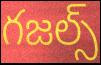
గజల్స్